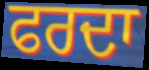
ਫਰਦਾ